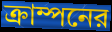
ক্রাম্পনের